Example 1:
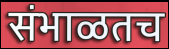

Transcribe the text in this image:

संभाळतच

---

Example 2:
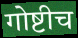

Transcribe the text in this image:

गोष्टीच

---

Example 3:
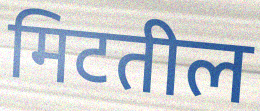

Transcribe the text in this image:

मिटतील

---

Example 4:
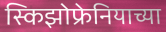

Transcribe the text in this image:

स्किझोफ्रेनियाच्या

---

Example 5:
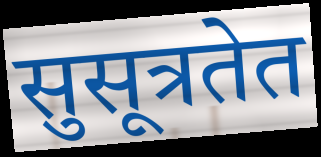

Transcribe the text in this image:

सुसूत्रतेत